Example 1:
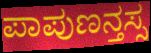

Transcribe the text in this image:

ಪಾಪುಣನ್ತಸ್ಸ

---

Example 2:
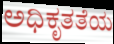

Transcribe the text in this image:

ಅಧಿಕೃತತೆಯ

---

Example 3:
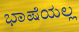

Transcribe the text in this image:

ಭಾಷೆಯಲ್ಲ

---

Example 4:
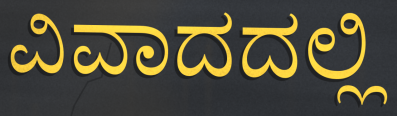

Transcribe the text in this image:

ವಿವಾದದಲ್ಲಿ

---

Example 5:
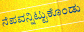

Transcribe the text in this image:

ನೆಪವನ್ನಿಟ್ಟುಕೊಂಡು